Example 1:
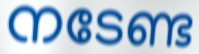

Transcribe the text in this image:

നടേണ്ട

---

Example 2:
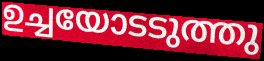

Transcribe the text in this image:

ഉച്ചയോടടുത്തു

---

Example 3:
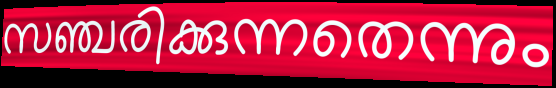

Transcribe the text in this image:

സഞ്ചരിക്കുന്നതെന്നും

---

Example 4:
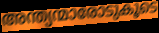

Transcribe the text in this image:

അന്ത്യന്മാരോടുകൂടെ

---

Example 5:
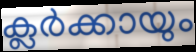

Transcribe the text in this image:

ക്ലർക്കായും